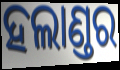
ହଲାଣ୍ଡର